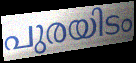
പുരയിടം